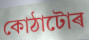
কোঠাটোৰ